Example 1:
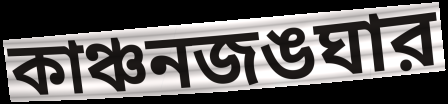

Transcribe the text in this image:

কাঞ্চনজঙঘার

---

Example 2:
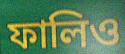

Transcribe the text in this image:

ফালিও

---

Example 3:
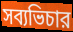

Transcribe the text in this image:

সব্যভিচার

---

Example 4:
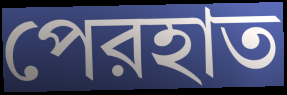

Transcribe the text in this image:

পেরহাত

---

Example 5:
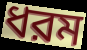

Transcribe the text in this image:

ধরম